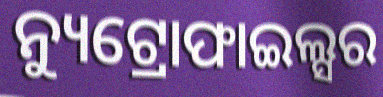
ନ୍ୟୁଟ୍ରୋଫାଇଲ୍ସର